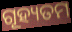
ଗୂହ୍ୟତମ